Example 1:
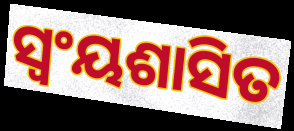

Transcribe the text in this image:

ସ୍ୱଂୟଶାସିତ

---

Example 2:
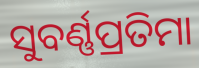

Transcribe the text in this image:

ସୁବର୍ଣ୍ଣପ୍ରତିମା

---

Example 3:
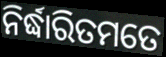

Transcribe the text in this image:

ନିର୍ଦ୍ଧାରିତମତେ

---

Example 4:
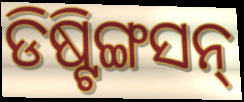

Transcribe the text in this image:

ଡିଷ୍ଟିଙ୍ଗସନ୍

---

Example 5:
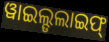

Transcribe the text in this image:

ୱାଇଲ୍ଡଲାଇଫ୍